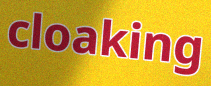
cloaking